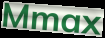
Mmax